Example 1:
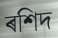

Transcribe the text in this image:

ৰশিদ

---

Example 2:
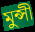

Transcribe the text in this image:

মুন্সী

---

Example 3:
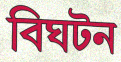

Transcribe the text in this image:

বিঘটন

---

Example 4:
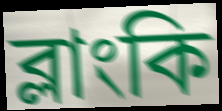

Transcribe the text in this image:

ব্লাংকি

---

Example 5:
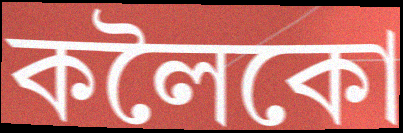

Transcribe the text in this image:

কলৈকো